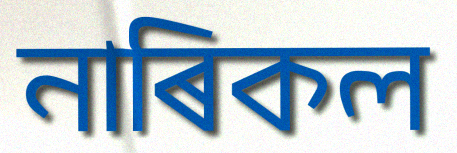
নাৰিকল